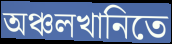
অঞ্চলখানিতে